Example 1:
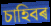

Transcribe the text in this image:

চাহিবৰ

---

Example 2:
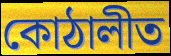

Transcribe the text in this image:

কোঠালীত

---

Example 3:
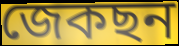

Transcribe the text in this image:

জেকছন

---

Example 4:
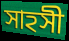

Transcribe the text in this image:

সাহসী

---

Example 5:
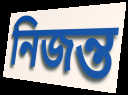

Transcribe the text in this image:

নিজন্ত